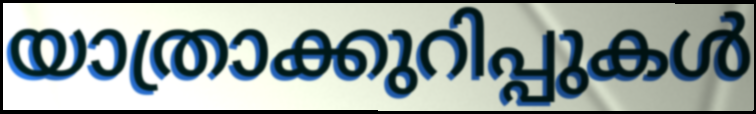
യാത്രാക്കുറിപ്പുകൾ